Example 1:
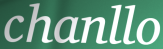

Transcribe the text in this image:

chanllo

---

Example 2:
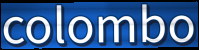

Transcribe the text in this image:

colombo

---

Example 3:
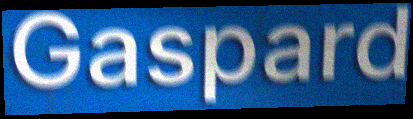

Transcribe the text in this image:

Gaspard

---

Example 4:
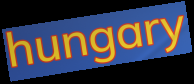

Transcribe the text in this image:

hungary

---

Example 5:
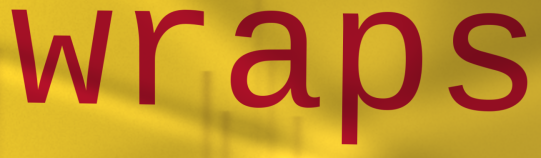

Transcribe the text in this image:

wraps